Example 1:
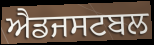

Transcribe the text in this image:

ਐਡਜਸਟਬਲ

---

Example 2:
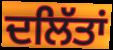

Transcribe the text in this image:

ਦਲਿੱਤਾਂ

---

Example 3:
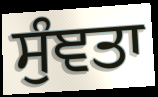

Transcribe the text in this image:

ਸੁੰਞਤਾ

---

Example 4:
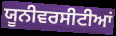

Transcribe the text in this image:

ਯੂਨੀਵਰਸੀਟੀਆਂ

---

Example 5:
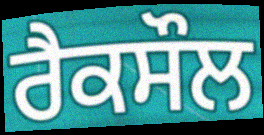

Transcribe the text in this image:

ਰੈਕਸੌਲ